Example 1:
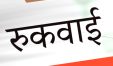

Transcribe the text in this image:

रुकवाई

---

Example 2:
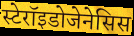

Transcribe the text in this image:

स्टेरॉइडोजेनेसिस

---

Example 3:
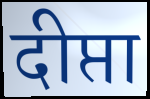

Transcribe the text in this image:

दीप्ता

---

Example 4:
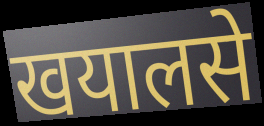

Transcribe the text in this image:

खयालसे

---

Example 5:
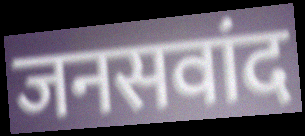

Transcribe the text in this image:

जनसवांद